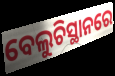
ବେଲୁଚିସ୍ଥାନରେ